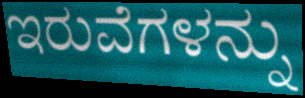
ಇರುವೆಗಳನ್ನು